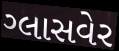
ગ્લાસવેર